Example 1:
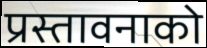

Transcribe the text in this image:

प्रस्तावनाको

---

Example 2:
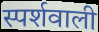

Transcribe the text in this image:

स्पर्शवाली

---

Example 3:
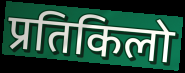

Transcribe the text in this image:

प्रतिकिलो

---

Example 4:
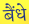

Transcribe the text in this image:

बैंधे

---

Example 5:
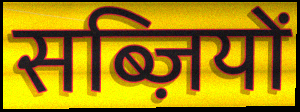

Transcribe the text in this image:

सब्ज़ियों